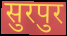
सुरपुर